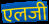
एलजी